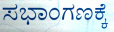
ಸಭಾಂಗಣಕ್ಕೆ